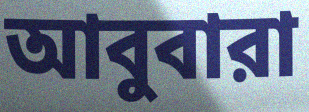
আবুবারা